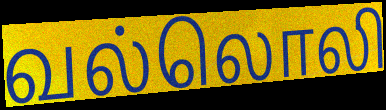
வல்லொலி